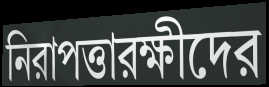
নিরাপত্তারক্ষীদের